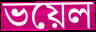
ভয়েল